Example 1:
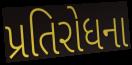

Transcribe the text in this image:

પ્રતિરોધના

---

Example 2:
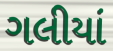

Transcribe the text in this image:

ગલીયાં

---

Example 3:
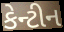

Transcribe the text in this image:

કેન્ટીન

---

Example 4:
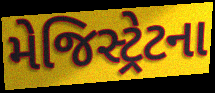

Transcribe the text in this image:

મેજિસ્ટ્રેટના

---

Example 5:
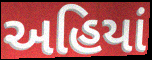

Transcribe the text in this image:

અહિયાં